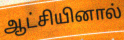
ஆட்சியினால்